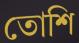
তোশি